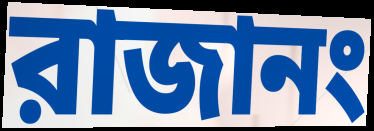
রাজানং